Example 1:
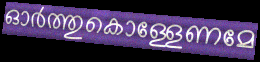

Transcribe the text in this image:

ഓർത്തുകൊള്ളേണമേ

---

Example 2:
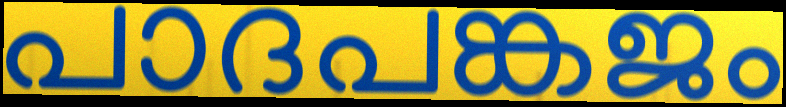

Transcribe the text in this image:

പാദപങ്കജം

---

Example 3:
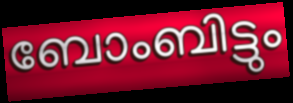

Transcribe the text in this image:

ബോംബിട്ടും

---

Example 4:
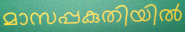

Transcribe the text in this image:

മാസപ്പകുതിയിൽ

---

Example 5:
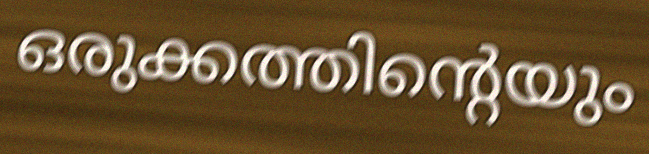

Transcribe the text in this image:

ഒരുക്കത്തിന്റെയും